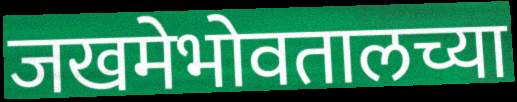
जखमेभोवतालच्या